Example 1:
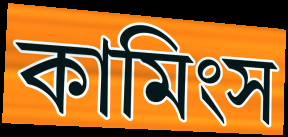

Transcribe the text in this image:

কামিংস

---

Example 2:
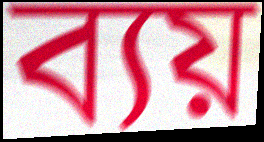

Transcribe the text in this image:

ব্যয়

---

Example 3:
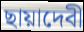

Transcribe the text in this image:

ছায়াদেবী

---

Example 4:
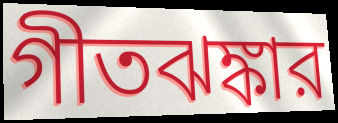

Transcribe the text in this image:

গীতঝঙ্কার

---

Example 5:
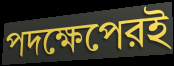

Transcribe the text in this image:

পদক্ষেপেরই